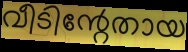
വീടിന്റേതായ